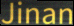
Jinan